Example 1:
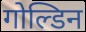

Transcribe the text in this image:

गोल्डिन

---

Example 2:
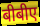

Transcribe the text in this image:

बीबीए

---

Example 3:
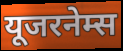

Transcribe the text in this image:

यूजरनेम्स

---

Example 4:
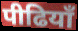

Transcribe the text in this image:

पीढियाँ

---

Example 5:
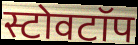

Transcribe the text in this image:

स्टोवटॉप